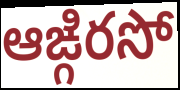
ఆఙ్గిరసో